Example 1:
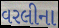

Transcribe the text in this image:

વરલીના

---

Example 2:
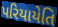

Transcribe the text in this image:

પરિયાયેતિ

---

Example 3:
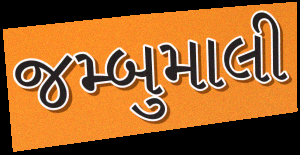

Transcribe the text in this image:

જમ્બુમાલી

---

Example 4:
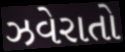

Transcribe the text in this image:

ઝવેરાતો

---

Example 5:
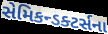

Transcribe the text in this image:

સેમિકન્ડક્ટર્સના